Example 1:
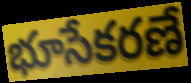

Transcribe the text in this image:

భూసేకరణే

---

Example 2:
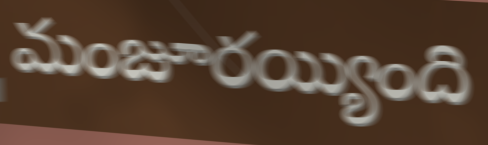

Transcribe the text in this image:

మంజూరయ్యింది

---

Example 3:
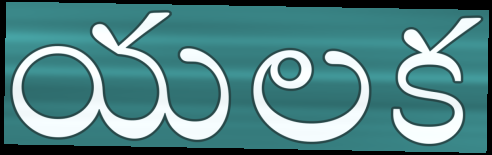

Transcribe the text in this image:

యలక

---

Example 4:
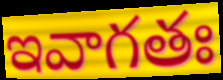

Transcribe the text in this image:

ఇవాగతః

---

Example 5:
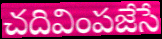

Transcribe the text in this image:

చదివింపజేసే